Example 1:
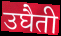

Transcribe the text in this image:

उघैती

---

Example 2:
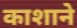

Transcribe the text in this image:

काशाने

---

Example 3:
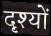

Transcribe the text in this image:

दृश्यों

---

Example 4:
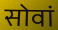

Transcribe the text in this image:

सोवां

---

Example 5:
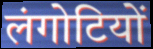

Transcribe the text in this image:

लंगोटियों